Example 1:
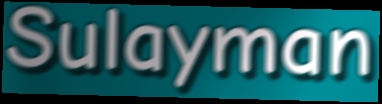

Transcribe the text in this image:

Sulayman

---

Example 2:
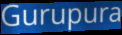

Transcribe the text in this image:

Gurupura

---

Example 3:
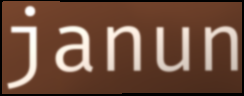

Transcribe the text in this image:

janun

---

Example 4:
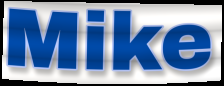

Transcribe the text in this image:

Mike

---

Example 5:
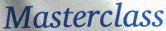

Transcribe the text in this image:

Masterclass